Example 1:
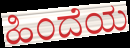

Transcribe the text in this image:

ಹಿಂದೆಯ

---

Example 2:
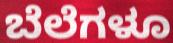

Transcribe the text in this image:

ಬೆಲೆಗಳೂ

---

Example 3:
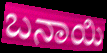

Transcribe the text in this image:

ಬನಾಯಿ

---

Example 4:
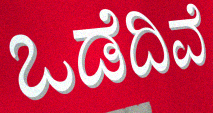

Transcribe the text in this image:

ಒಡೆದಿವೆ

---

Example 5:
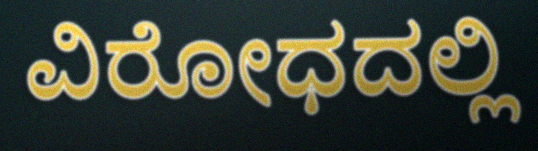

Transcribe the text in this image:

ವಿರೋಧದಲ್ಲಿ